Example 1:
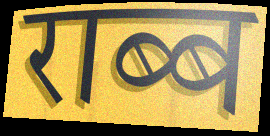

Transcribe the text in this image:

राब्ब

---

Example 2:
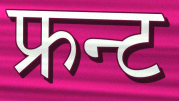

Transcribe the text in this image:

फ्रन्ट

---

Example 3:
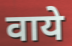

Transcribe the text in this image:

वाये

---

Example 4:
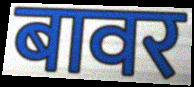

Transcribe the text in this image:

बावर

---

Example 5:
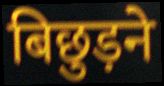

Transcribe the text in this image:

बिछुड़ने